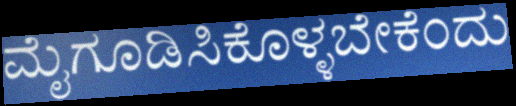
ಮೈಗೂಡಿಸಿಕೊಳ್ಳಬೇಕೆಂದು